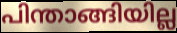
പിന്താങ്ങിയില്ല